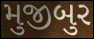
મુજીબુર